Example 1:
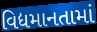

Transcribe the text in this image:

વિદ્યમાનતામાં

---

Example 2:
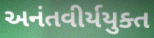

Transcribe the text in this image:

અનંતવીર્યયુક્ત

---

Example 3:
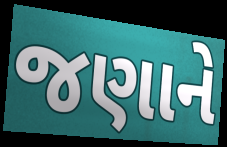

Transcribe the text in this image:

જણાને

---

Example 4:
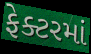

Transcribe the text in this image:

ફેક્ટરમાં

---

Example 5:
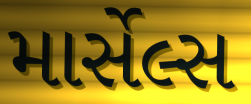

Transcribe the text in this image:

માર્સેલ્સ